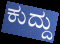
ಕುದ್ದು